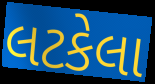
લટકેલા